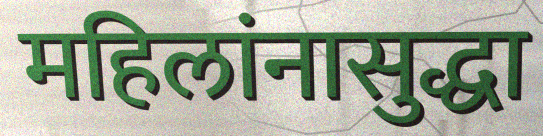
महिलांनासुद्धा